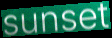
sunset